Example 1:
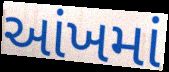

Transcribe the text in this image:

આંખમાં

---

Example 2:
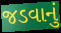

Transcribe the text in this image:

જડવાનું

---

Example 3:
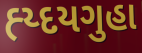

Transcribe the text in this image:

હ્ય્દયગુહા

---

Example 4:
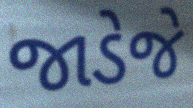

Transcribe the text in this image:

જાડેજે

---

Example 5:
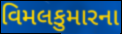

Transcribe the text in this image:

વિમલકુમારના